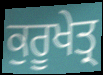
ਕੁਰੂਖੇਤ੍ਰ